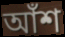
আঁশ